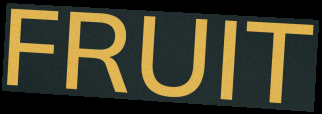
FRUIT